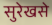
सुरेखसे